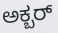
ಅಕ್ಬರ್